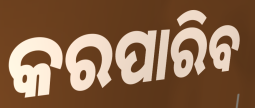
କରପାରିବ